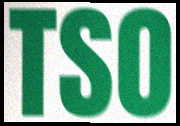
TSO